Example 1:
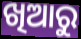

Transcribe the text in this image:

ଖିଆରୁ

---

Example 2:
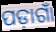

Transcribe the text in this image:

ପଡ଼ାଗାଁ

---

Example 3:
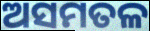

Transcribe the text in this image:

ଅସମତଳ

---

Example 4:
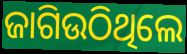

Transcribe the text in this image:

ଜାଗିଉଠିଥିଲେ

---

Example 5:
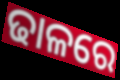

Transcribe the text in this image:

ଢାଳରେ